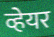
व्हेयर